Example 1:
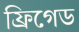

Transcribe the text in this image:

ফ্রিগেড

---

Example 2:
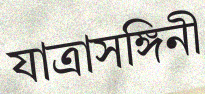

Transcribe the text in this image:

যাত্রাসঙ্গিনী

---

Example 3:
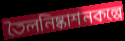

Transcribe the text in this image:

তৈলনিষ্কাশনকল্পে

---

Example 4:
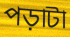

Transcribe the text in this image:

পড়াটা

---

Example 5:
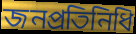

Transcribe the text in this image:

জনপ্রতিনিধি